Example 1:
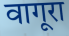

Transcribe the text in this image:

वागूरा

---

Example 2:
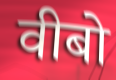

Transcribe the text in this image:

वीबो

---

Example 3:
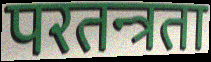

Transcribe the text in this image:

परतन्त्रता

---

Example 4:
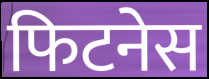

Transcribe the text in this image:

फिटनेस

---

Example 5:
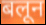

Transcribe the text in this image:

बलून